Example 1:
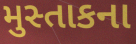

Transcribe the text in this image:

મુસ્તાકના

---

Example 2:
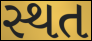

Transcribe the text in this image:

સ્થત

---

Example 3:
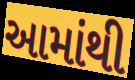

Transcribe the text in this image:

આમાંથી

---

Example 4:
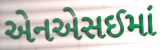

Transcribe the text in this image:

એનએસઈમાં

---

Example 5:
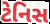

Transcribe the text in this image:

ટેનિસ